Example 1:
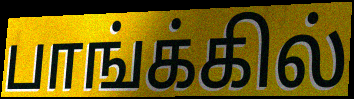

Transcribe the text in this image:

பாங்க்கில்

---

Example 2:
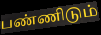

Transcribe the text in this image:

பண்ணிடும்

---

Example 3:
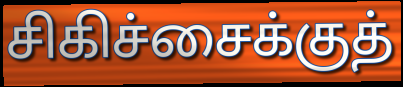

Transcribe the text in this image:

சிகிச்சைக்குத்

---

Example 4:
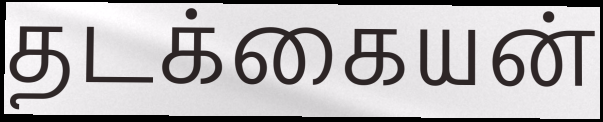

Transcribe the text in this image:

தடக்கையன்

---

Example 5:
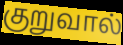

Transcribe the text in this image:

குறுவால்